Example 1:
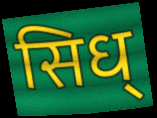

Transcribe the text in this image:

सिध्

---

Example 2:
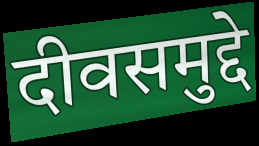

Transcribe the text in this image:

दीवसमुद्दे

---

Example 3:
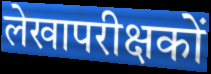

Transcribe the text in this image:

लेखापरीक्षकों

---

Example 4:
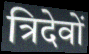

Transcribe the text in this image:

त्रिदेवों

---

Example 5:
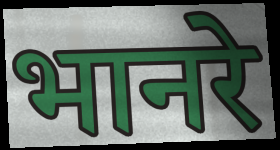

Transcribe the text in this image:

भानरे